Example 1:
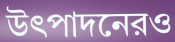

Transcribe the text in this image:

উৎপাদনেরও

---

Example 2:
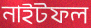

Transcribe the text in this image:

নাইটফল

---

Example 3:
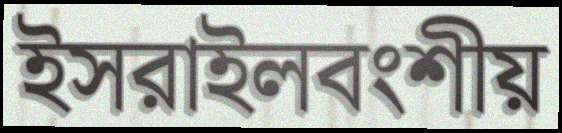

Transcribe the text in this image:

ইসরাইলবংশীয়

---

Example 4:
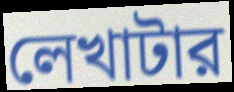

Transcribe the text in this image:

লেখাটার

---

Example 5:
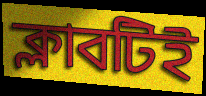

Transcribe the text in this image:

ক্লাবটিই